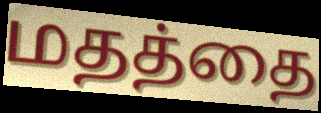
மதத்தை